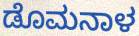
ಡೊಮನಾಳ